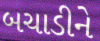
બચાડીને